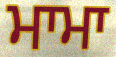
ਮਾਮਾ